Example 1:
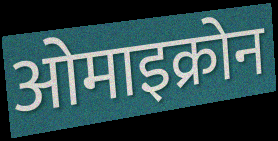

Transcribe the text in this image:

ओमाइक्रोन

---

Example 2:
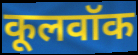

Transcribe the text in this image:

कूलवॉक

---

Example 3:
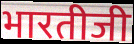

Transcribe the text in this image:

भारतीजी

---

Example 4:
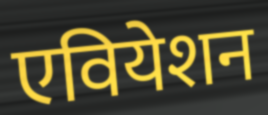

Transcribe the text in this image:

एवियेशन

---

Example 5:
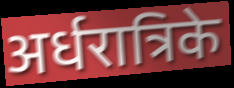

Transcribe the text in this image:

अर्धरात्रिके